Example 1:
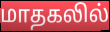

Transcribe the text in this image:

மாதகலில்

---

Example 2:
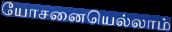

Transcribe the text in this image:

யோசனையெல்லாம்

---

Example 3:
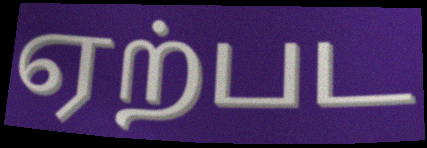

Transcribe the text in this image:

ஏற்பட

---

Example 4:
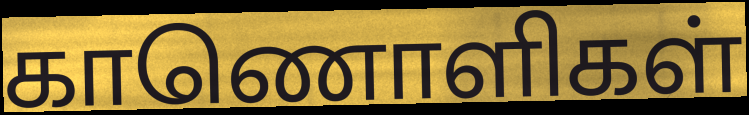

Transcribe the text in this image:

காணொளிகள்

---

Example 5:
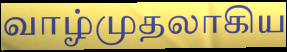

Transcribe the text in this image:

வாழ்முதலாகிய